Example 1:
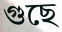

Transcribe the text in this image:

গুছে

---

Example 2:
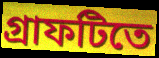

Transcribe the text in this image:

গ্রাফটিতে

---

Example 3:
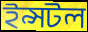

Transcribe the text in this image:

ইন্সটল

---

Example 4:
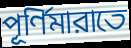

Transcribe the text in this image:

পূর্ণিমারাতে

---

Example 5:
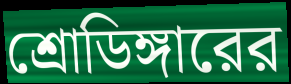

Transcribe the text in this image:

শ্রোডিঙ্গারের